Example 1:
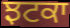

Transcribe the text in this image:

ਝਟਕਾ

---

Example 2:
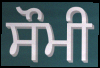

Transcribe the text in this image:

ਸੌਮੀ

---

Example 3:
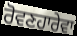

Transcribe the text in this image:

ਰੋਵਣਹਾਰੇਵਾ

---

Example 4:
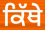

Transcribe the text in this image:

ਕਿੱਥੇ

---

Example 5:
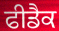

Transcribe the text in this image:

ਫੀਡੈਕ